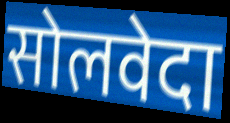
सोलवेदा